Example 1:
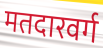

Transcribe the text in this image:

मतदारवर्ग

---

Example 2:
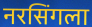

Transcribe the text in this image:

नरसिंगला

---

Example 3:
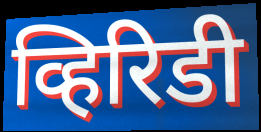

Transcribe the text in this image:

व्हिरिडी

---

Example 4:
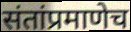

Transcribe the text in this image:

संतांप्रमाणेच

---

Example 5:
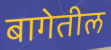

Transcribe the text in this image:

बागेतील